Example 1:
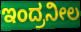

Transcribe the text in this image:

ಇಂದ್ರನೀಲ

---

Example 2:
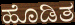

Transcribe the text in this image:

ಹೊಡಿತ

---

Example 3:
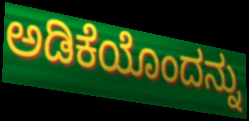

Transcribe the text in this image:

ಅಡಿಕೆಯೊಂದನ್ನು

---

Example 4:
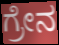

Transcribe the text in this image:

ಗ್ರೇನ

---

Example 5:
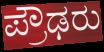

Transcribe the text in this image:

ಪ್ರೌಢರು